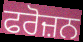
ਫਰੋਜ਼ਨ